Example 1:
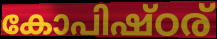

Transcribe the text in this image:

കോപിഷ്ഠര്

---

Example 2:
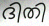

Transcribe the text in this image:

ദിതി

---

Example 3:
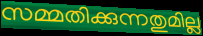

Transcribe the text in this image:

സമ്മതിക്കുന്നതുമില്ല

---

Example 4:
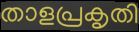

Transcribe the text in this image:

താളപ്രകൃതി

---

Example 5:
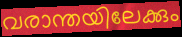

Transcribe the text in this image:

വരാന്തയിലേക്കും